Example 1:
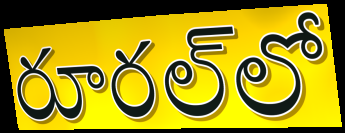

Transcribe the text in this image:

రూరల్‌లో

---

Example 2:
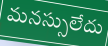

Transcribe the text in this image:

మనస్సులేదు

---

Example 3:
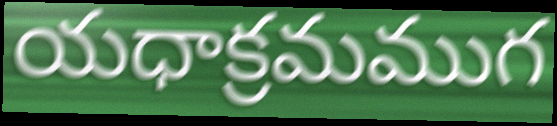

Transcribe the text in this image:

యధాక్రమముగ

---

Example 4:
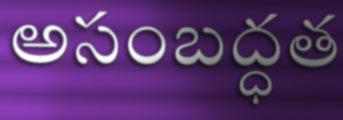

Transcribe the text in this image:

అసంబద్ధత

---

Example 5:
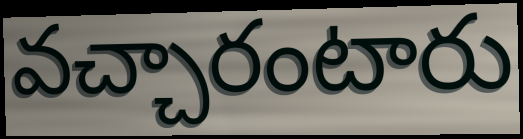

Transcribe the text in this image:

వచ్చారంటారు